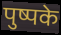
पुष्पके